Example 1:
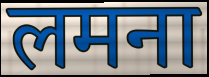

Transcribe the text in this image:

लमना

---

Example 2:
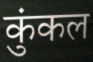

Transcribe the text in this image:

कुंकल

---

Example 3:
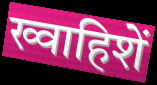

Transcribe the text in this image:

ख्वाहिशें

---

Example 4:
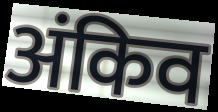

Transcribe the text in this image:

अंकिव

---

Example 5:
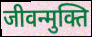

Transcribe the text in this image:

जीवन्मुक्ति